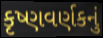
કૃષ્ણવર્ણકનું